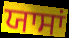
ਯਾਸਾਂ